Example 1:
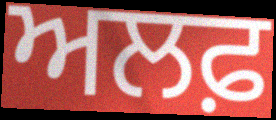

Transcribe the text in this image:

ਅਲਫ਼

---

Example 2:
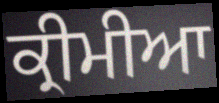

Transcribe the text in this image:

ਕ੍ਰੀਮੀਆ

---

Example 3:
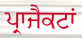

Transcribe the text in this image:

ਪ੍ਰਾਜੈਕਟਾਂ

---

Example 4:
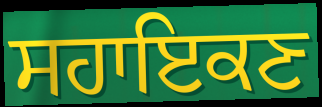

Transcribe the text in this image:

ਸਹਾਇਕਣ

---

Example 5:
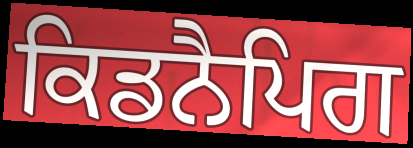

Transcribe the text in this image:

ਕਿਡਨੈਪਿਗ